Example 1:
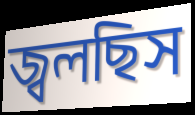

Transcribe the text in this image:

জ্বলছিস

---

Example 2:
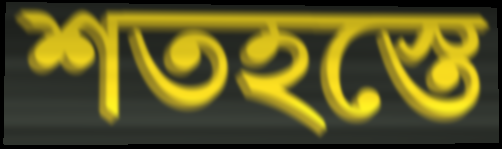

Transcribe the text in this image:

শতহস্তে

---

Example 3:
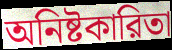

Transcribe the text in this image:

অনিষ্টকারিতা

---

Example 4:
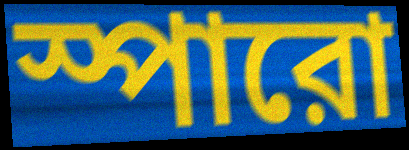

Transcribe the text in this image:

স্পারো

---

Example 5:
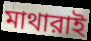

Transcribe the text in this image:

মাথারাই